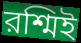
রশ্মিই